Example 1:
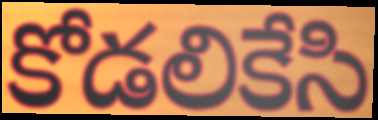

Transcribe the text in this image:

కోడలికేసి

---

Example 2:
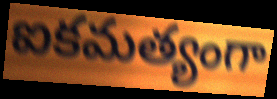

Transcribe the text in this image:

ఐకమత్యంగా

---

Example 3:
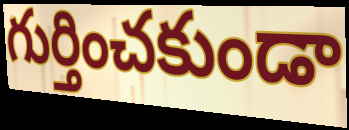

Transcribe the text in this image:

గుర్తించకుండా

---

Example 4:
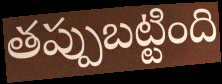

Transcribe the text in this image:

తప్పుబట్టింది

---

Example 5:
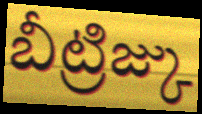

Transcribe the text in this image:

బీట్రిజ్కు